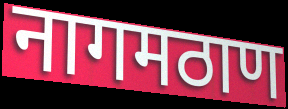
नागमठाण